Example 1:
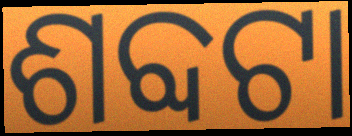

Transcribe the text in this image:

ଶବ୍ଦଟା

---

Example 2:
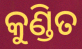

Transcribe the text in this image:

କୁଣ୍ଡିତ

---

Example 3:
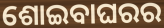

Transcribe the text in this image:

ଶୋଇବାଘରର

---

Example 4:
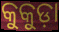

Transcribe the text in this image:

କୁକୁଡ଼ା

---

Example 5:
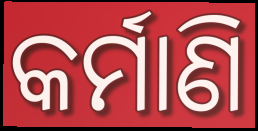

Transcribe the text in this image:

କର୍ମାଣି